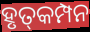
ହୃତ୍‌କମ୍ପନ